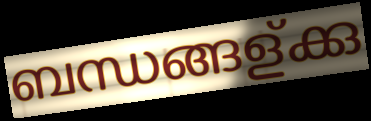
ബന്ധങ്ങള്ക്കു